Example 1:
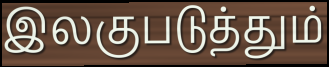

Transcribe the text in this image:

இலகுபடுத்தும்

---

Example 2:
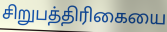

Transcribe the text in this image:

சிறுபத்திரிகையை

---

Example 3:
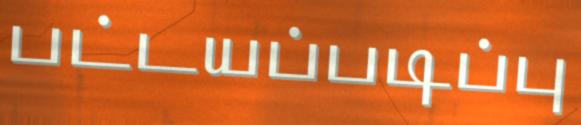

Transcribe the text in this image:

பட்டயப்படிப்பு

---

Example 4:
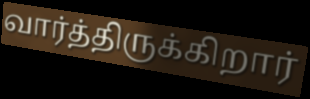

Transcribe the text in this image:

வார்த்திருக்கிறார்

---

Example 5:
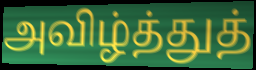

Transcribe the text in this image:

அவிழ்த்துத்